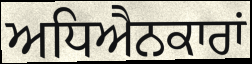
ਅਧਿਐਨਕਾਰਾਂ